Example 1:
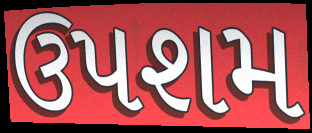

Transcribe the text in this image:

ઉપશમ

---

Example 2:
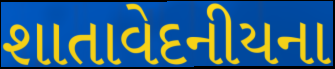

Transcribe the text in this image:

શાતાવેદનીયના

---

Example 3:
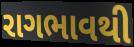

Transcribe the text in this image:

રાગભાવથી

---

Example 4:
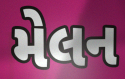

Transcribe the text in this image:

મેલન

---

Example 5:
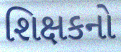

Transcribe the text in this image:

શિક્ષકનો